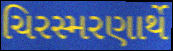
ચિરસ્મરણાર્થે